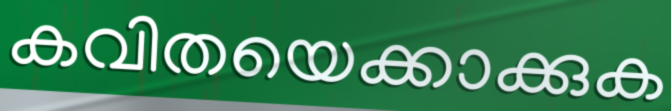
കവിതയെക്കാക്കുക